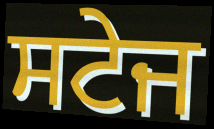
ਸਟੇਜ